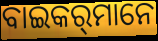
ବାଇକର୍‌ମାନେ